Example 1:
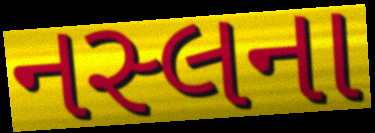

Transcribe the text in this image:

નસ્લના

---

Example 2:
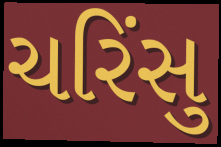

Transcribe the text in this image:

ચરિંસુ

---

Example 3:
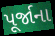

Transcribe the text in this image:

પૂર્જાના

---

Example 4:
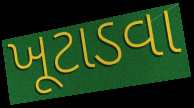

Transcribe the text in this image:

ખૂટાડવા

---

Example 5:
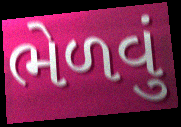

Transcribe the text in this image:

ભેળવું